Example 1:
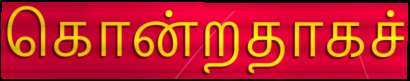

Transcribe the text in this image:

கொன்றதாகச்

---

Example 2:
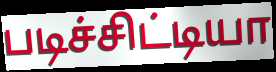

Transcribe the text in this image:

படிச்சிட்டியா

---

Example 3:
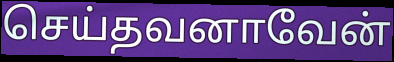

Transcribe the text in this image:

செய்தவனாவேன்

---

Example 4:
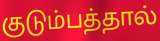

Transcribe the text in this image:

குடும்பத்தால்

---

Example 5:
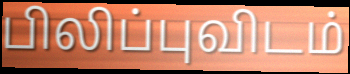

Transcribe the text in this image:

பிலிப்புவிடம்